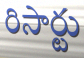
రిసార్టు